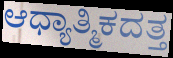
ಆಧ್ಯಾತ್ಮಿಕದತ್ತ